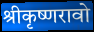
श्रीकृष्णरावो